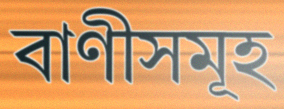
বাণীসমূহ